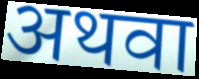
अथवा